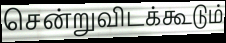
சென்றுவிடக்கூடும்